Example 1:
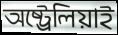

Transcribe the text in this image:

অষ্ট্ৰেলিয়াই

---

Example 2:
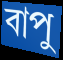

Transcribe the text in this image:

বাপু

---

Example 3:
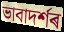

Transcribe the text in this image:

ভাবাদৰ্শৰ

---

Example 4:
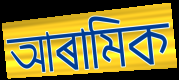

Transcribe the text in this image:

আৰামিক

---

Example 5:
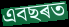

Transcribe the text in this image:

এবছৰত